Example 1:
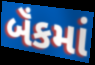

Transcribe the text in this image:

બૅંકમાં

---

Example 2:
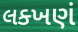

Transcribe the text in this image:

લક્ખણં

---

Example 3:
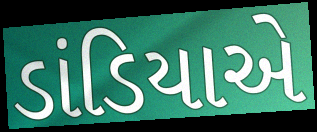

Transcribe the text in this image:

ડાંડિયાએ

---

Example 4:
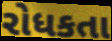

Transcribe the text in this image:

રોધકતા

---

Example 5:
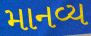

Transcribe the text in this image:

માનવ્ય